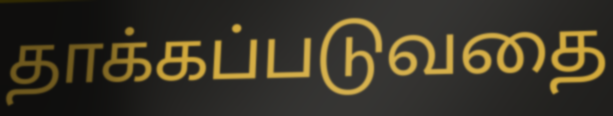
தாக்கப்படுவதை